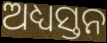
ଅଧ୍ୟସ୍ତନ